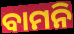
ବାମନି